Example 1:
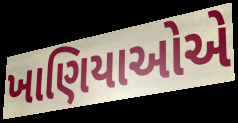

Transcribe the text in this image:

ખાણિયાઓએ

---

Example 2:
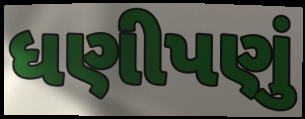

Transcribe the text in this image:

ધણીપણું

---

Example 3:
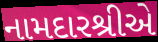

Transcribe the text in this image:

નામદારશ્રીએ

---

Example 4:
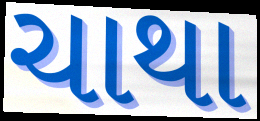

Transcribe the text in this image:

ચાથા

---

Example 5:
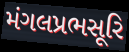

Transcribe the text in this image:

મંગલપ્રભસૂરિ